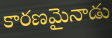
కారణమైనాడు